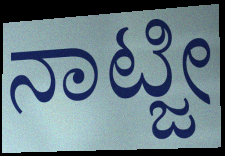
ನಾಟ್ಜೀ